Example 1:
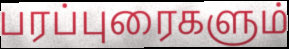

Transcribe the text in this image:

பரப்புரைகளும்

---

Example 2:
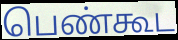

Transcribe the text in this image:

பெண்கூட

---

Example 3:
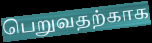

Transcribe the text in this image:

பெறுவதற்காக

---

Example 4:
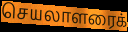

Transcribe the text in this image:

செயலாளரைக்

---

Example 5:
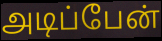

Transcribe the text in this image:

அடிப்பேன்